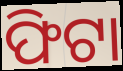
ଫିଟା